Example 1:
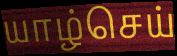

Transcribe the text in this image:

யாழ்செய்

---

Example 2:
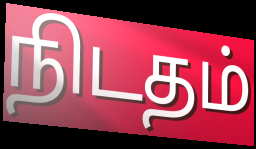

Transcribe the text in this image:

நிடதம்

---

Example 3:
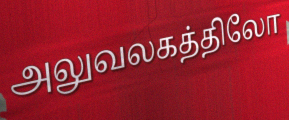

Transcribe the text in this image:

அலுவலகத்திலோ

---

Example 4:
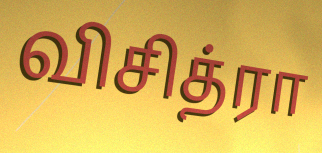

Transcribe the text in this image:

விசித்ரா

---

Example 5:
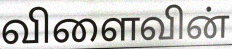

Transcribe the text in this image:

விளைவின்